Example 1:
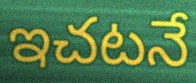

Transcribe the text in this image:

ఇచటనే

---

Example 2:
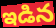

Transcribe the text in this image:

ఇడిన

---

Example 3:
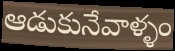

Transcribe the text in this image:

ఆడుకునేవాళ్ళం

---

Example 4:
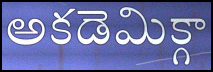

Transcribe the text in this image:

అకడెమిక్గా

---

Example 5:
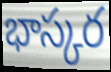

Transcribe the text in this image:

భాస్కర